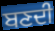
ਬਣਦੀ